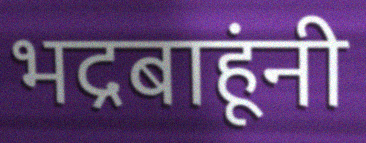
भद्रबाहूंनी